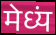
मेध्यं